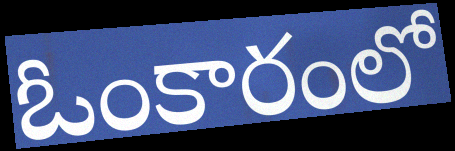
ఓంకారంలో